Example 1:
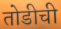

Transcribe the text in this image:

तोडीची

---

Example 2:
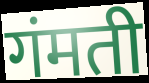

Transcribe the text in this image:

गंमती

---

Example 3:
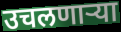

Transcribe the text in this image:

उचलणाऱ्या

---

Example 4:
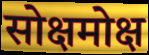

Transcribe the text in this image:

सोक्षमोक्ष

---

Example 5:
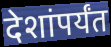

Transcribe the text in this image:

देशांपर्यंत